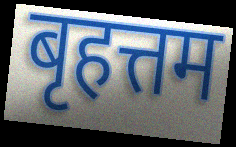
बृहत्तम